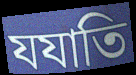
যযাতি